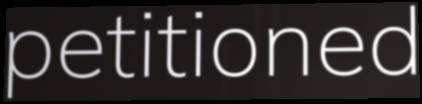
petitioned